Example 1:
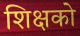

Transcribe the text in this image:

शिक्षको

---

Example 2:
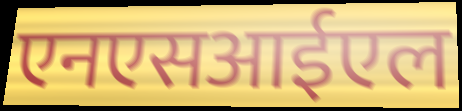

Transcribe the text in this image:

एनएसआईएल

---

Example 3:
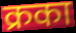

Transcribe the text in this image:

क्रका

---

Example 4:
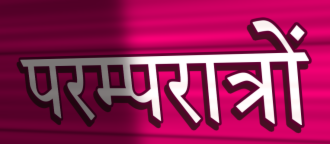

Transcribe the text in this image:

परम्परात्रों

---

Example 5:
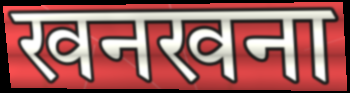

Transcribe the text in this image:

खनखना